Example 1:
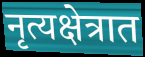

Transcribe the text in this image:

नृत्यक्षेत्रात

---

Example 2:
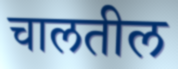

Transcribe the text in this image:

चालतील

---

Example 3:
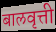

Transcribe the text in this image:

बालवृत्ती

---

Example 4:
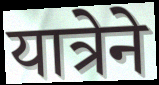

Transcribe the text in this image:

यात्रेने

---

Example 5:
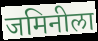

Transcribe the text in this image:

जमिनीला